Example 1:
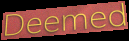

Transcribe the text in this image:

Deemed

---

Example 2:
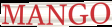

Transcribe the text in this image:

MANGO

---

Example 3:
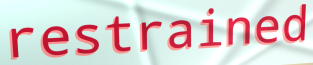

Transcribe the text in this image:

restrained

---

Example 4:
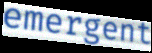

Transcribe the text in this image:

emergent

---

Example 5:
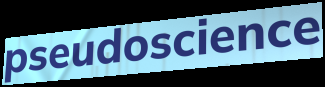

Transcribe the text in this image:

pseudoscience